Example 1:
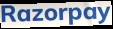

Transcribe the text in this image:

Razorpay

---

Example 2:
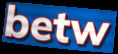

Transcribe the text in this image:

betw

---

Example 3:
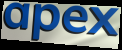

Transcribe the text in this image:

apex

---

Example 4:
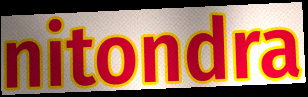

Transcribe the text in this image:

nitondra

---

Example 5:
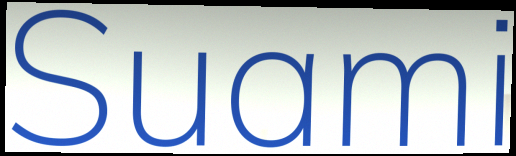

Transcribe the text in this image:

Suami